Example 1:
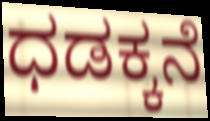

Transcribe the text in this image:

ಧಡಕ್ಕನೆ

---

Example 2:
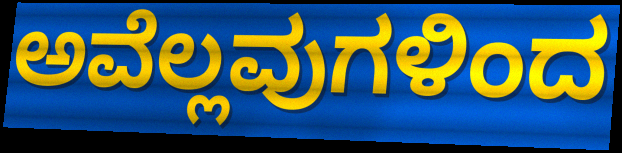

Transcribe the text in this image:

ಅವೆಲ್ಲವುಗಳಿಂದ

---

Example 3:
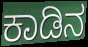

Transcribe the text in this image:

ಕಾಡಿನ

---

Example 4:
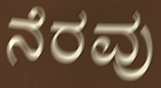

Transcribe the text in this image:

ನೆರವು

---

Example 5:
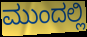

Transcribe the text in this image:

ಮುಂದಲ್ಲಿ